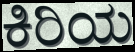
ಕಿರಿಯ